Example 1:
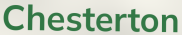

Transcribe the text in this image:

Chesterton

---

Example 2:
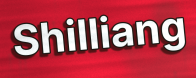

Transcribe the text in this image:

Shilliang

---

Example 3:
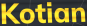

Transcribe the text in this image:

Kotian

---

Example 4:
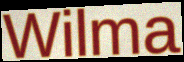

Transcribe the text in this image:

Wilma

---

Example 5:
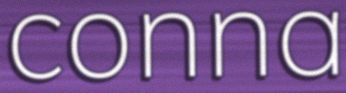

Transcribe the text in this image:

conna